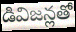
డివిజన్లతో